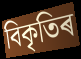
বিকৃতিৰ